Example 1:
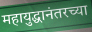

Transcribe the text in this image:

महायुद्धानंतरच्या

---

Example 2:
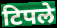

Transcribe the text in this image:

टिपले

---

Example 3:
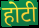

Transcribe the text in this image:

होटी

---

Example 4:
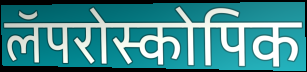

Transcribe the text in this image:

लॅपरोस्कोपिक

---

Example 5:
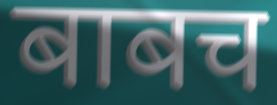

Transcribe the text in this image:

बाबच